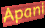
Apani